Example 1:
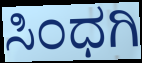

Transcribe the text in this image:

ಸಿಂಧಗಿ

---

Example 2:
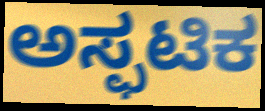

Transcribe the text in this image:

ಅಸ್ಫಟಿಕ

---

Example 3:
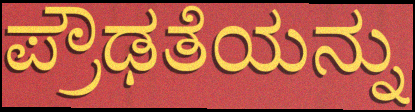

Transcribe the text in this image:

ಪ್ರೌಢತೆಯನ್ನು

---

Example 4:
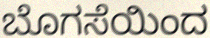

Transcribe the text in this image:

ಬೊಗಸೆಯಿಂದ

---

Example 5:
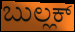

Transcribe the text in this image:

ಬುಲ್ಲಕ್